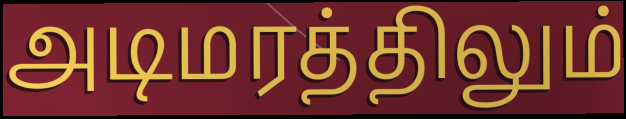
அடிமரத்திலும்